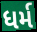
ધર્મ